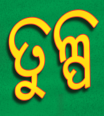
ତୁଳ୍ପ